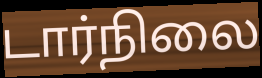
டார்நிலை